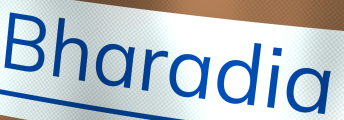
Bharadia